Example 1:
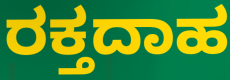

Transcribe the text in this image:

ರಕ್ತದಾಹ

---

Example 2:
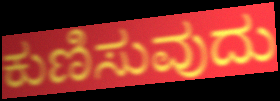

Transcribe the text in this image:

ಕುಣಿಸುವುದು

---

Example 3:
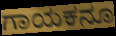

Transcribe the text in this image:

ಗಾಯಕನೂ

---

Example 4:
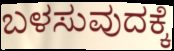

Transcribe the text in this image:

ಬಳಸುವುದಕ್ಕೆ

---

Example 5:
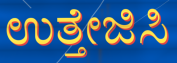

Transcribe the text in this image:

ಉತ್ತೇಜಿಸಿ